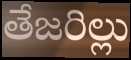
తేజరిల్లు